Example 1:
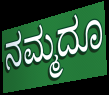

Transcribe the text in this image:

ನಮ್ಮದೂ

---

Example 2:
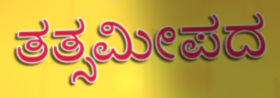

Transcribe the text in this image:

ತತ್ಸಮೀಪದ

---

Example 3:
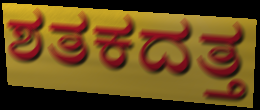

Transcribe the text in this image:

ಶತಕದತ್ತ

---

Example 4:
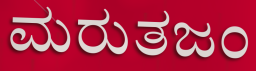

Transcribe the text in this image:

ಮರುತಜಂ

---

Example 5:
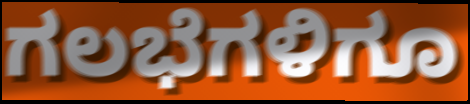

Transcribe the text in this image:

ಗಲಭೆಗಳಿಗೂ